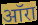
ऑरा